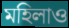
মহিলাও